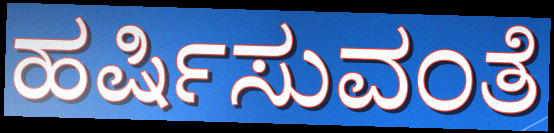
ಹರ್ಷಿಸುವಂತೆ